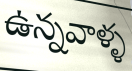
ఉన్నవాళ్ళ